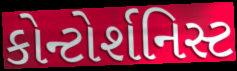
કોન્ટોર્શનિસ્ટ